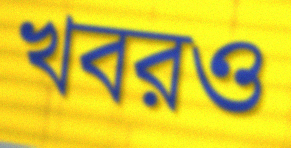
খবরও